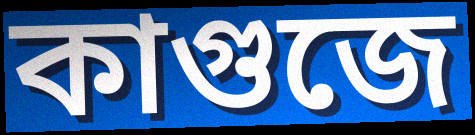
কাগুজে